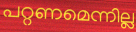
പറ്റണമെന്നില്ല